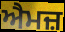
ਐਮਜ਼